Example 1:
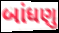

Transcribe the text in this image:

બાંધણુ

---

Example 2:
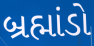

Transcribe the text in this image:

બ્રહ્માંડો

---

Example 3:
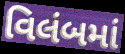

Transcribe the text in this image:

વિલંબમાં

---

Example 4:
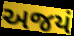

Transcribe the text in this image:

અજયં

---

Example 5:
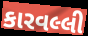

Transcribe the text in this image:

કારવલ્લી